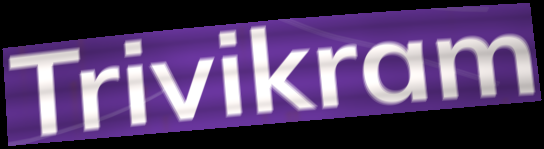
Trivikram